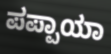
ಪಪ್ಪಾಯಾ